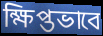
ক্ষিপ্তভাবে